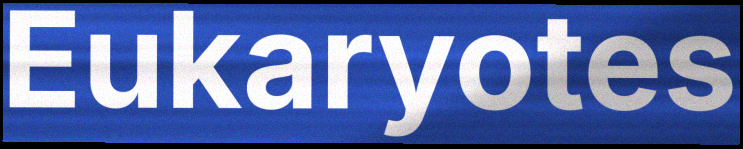
Eukaryotes